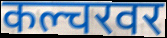
कल्चरवर